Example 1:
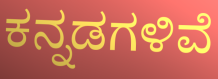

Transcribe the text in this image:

ಕನ್ನಡಗಳಿವೆ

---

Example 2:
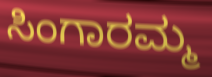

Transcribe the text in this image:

ಸಿಂಗಾರಮ್ಮ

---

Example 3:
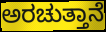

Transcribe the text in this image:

ಅರಚುತ್ತಾನೆ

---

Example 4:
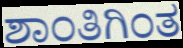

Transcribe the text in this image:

ಶಾಂತಿಗಿಂತ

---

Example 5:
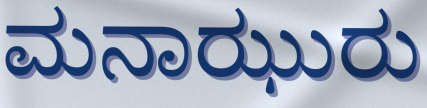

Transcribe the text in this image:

ಮನಾಝುರು